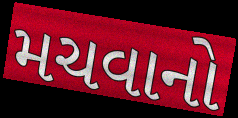
મચવાનો